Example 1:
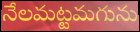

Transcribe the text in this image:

నేలమట్టమగును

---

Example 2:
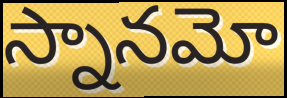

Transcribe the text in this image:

స్నానమో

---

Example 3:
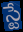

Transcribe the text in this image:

స్టే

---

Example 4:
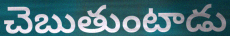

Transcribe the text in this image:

చెబుతుంటాడు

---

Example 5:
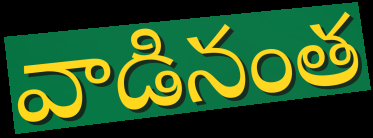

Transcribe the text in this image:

వాడినంత